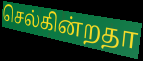
செல்கின்றதா